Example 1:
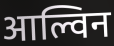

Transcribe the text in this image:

आल्विन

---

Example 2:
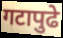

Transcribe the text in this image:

गटापुढे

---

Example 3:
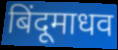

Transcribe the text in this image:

बिंदूमाधव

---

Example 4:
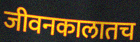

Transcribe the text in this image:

जीवनकालातच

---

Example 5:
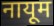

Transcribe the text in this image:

नायूम